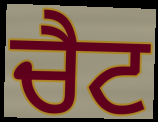
ਚੈਟ